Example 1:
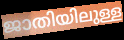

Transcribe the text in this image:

ജാതിയിലുള്ള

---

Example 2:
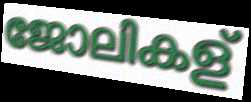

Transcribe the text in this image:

ജോലികള്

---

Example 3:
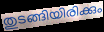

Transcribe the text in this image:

തുടങ്ങിയിരിക്കും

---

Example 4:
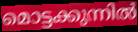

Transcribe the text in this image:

മൊട്ടക്കുന്നിൽ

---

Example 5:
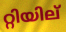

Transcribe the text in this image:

റ്റിയില്